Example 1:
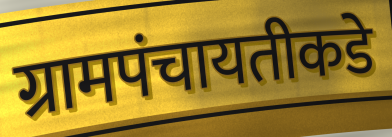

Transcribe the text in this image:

ग्रामपंचायतीकडे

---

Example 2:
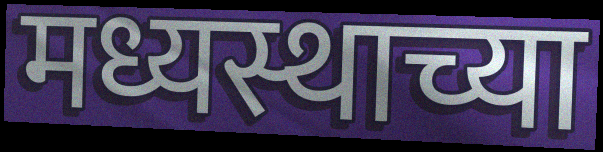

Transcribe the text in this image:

मध्यस्थाच्या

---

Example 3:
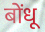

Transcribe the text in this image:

बोंधू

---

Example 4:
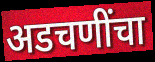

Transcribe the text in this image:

अडचणींचा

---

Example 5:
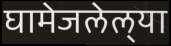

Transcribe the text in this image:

घामेजलेल्या